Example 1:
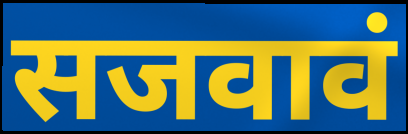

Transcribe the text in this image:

सजवावं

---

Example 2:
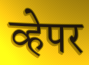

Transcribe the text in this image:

व्हेपर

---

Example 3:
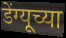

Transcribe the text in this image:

डेंग्यूच्या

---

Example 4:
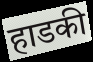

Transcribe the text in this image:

हाडकी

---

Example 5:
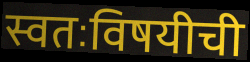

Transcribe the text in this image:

स्वतःविषयीची